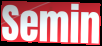
Semin